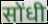
सोंधी